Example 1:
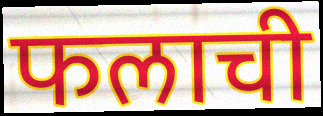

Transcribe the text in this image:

फलाची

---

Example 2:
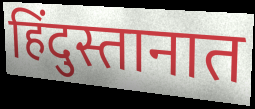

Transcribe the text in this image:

हिंदुस्तानात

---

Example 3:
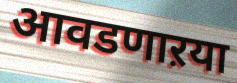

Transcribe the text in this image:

आवडणाऱया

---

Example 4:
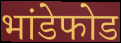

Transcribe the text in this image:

भांडेफोड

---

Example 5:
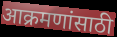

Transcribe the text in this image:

आक्रमणांसाठी